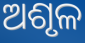
ଅଶୃଳ